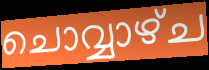
ചൊവ്വാഴ്‌ച